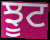
ਝੂਟ